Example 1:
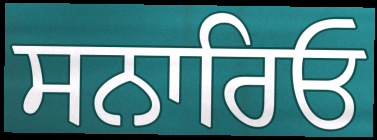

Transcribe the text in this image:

ਸਨਾਰਿਓ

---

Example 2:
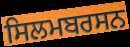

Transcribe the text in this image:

ਸਿਲਮਬਰਸਨ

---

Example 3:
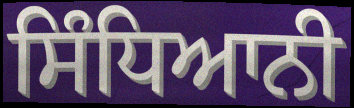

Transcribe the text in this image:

ਸਿੰਧਿਆਨੀ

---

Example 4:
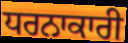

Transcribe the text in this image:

ਧਰਨਾਕਾਰੀ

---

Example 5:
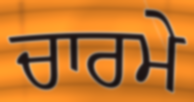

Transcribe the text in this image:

ਚਾਰਮੇ